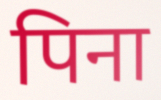
पिना